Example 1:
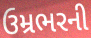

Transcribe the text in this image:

ઉમ્રભરની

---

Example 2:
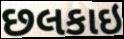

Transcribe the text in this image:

છલકાઇ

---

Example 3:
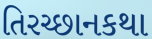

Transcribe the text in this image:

તિરચ્છાનકથા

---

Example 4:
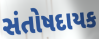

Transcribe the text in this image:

સંતોષદાયક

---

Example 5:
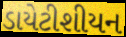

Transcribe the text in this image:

ડાયેટીશીયન